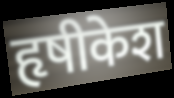
हृषीकेश